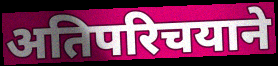
अतिपरिचयाने